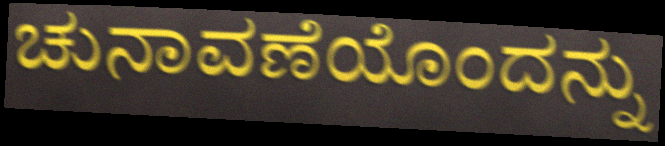
ಚುನಾವಣೆಯೊಂದನ್ನು